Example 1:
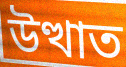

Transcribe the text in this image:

উত্থাত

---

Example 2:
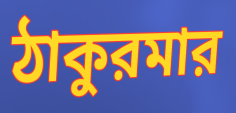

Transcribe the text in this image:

ঠাকুরমার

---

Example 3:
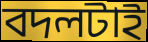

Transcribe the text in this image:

বদলটাই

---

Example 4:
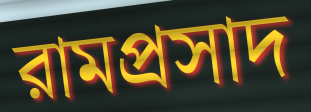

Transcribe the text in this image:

রামপ্রসাদ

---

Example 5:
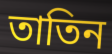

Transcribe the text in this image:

তাতিন